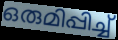
ഒരുമിപ്പിച്ച്